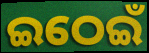
ଇଠେଇଁ